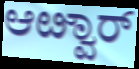
ಆೞ್ವಾರ್